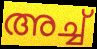
അച്ച്